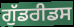
ਗੁੱਡਰੀਡਸ